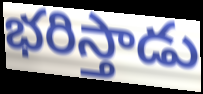
భరిస్తాడు